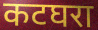
कटघरा